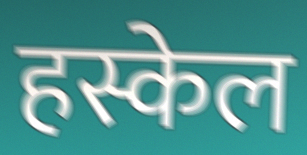
हस्केल